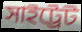
সাইট্রেট